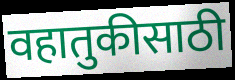
वहातुकीसाठी